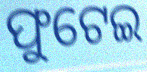
ଫୁଟେଇ